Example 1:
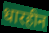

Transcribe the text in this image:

धारहीन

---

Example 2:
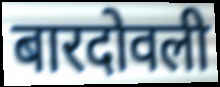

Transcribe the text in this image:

बारदोवली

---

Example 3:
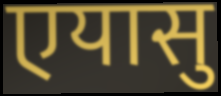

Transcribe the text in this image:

एयासु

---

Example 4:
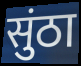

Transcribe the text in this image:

सुंठा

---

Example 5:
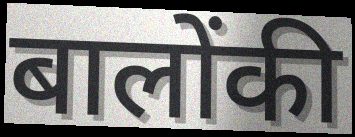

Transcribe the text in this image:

बालोंकी